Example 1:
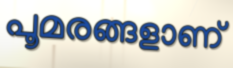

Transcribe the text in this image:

പൂമരങ്ങളാണ്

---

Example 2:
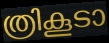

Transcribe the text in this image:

ത്രികൂടാ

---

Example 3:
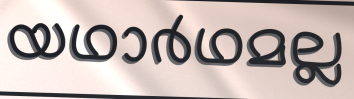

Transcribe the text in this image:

യഥാർഥമല്ല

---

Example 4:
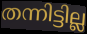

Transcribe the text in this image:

തന്നിട്ടില്ല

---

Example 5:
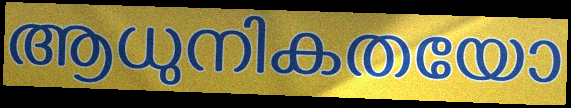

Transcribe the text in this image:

ആധുനികതയോ